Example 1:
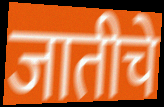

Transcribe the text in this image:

जातीचे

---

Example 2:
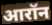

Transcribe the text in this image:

आरॉन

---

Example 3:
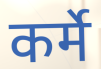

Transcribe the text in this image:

कर्मे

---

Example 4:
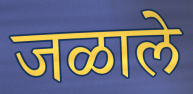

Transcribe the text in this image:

जळाले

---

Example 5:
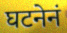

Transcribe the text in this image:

घटनेनं